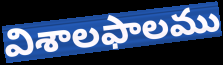
విశాలఫాలము